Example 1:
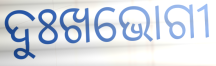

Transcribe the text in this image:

ଦୁଃଖଭୋଗୀ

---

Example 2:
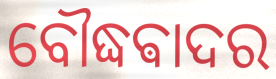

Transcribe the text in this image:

ବୌଦ୍ଧଵାଦର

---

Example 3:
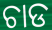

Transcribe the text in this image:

ଚାଡ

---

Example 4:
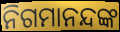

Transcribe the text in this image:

ନିଗମାନନ୍ଦଙ୍କ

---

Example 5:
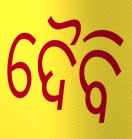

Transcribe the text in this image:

ଦୈବି